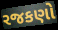
રજકણો